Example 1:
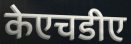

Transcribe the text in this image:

केएचडीए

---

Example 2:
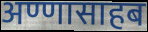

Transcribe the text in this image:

अण्णासाहब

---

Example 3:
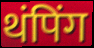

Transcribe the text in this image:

थंपिंग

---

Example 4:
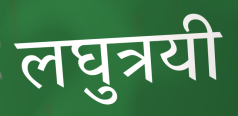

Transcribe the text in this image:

लघुत्रयी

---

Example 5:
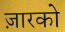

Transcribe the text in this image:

ज़ारको